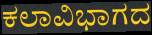
ಕಲಾವಿಭಾಗದ